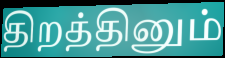
திறத்தினும்